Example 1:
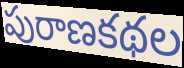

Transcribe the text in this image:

పురాణకథల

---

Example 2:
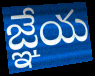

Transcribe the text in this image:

జ్ఞేయ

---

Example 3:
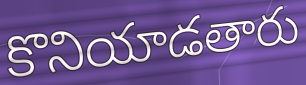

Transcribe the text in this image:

కొనియాడతారు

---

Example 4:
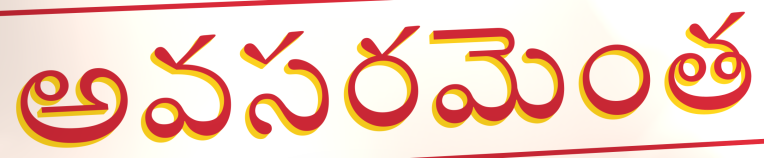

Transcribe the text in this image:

అవసరమెంత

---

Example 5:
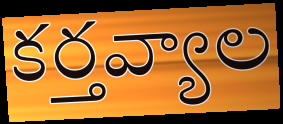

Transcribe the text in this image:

కర్తవ్యాల